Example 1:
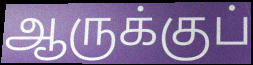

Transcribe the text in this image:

ஆருக்குப்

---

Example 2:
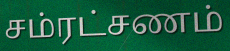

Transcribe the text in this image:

சம்ரட்சணம்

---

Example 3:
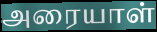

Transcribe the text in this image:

அரையாள்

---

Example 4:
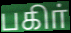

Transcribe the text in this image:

பகிர்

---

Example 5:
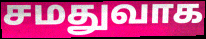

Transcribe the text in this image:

சமதுவாக